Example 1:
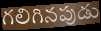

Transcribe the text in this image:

గలిగినపుడు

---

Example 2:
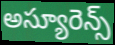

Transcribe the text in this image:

అస్యూరెన్స్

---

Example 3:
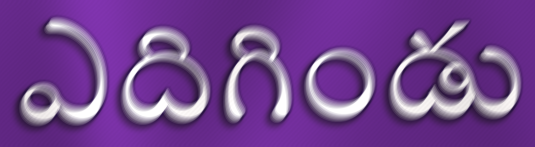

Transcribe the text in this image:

ఎదిగిండు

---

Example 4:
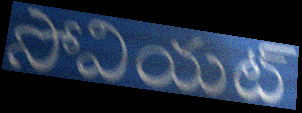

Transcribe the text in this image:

సోవియట్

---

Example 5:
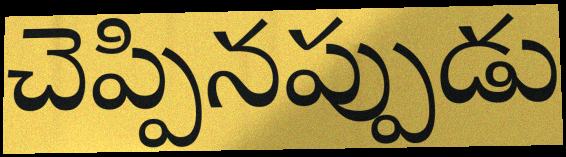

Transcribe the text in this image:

చెప్పినప్పుడు